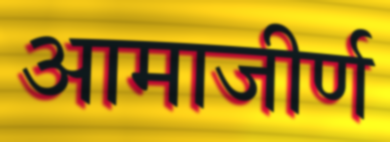
आमाजीर्ण